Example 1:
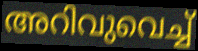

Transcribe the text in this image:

അറിവുവെച്ച്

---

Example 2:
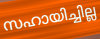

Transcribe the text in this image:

സഹായിച്ചില്ല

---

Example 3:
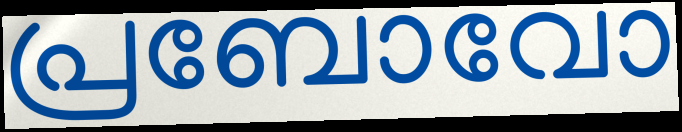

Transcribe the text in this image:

പ്രബോവോ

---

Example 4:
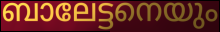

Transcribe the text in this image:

ബാലേട്ടനെയും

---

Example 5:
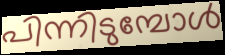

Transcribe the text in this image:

പിന്നിടുമ്പോൾ